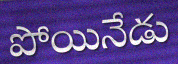
పోయినేడు